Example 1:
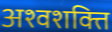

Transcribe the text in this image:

अश्वशक्ति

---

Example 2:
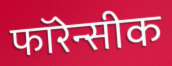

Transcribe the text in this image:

फॉरेन्सीक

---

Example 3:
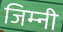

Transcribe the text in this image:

जिम्नी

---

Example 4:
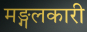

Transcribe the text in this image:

मङ्गलकारी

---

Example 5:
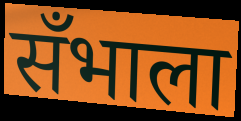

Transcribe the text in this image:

सँभाला